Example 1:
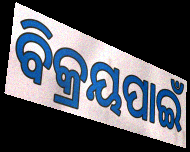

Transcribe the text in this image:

ବିକ୍ରୟପାଇଁ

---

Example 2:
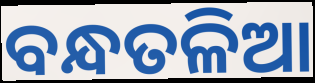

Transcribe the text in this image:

ବନ୍ଧତଳିଆ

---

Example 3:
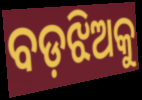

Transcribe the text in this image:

ବଡ଼ଝିଅକୁ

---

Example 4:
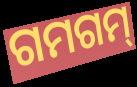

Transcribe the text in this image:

ଗମଗମ୍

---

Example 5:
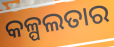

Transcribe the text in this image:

କଳ୍ପଲତାର